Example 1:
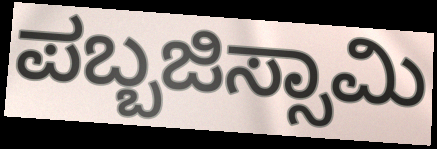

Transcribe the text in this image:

ಪಬ್ಬಜಿಸ್ಸಾಮಿ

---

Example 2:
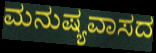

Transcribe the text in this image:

ಮನುಷ್ಯವಾಸದ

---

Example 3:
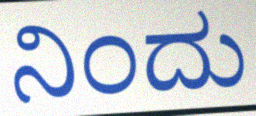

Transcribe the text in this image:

ನಿಂದು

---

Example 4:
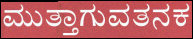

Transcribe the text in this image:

ಮುತ್ತಾಗುವತನಕ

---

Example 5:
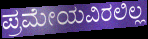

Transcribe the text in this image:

ಪ್ರಮೇಯವಿರಲಿಲ್ಲ